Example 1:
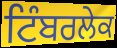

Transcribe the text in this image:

ਟਿੰਬਰਲੇਕ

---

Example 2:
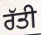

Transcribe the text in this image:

ਰੱਤੀ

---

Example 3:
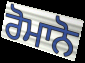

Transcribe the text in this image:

ਰੋਮਾਨੋ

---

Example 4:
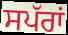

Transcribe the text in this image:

ਸਪੱਰਾਂ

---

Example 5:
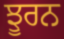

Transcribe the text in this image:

ਝੂਰਨ